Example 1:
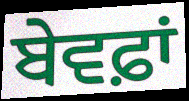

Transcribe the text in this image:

ਬੇਵਫ਼ਾਂ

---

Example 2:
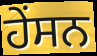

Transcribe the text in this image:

ਹੇਂਸਨ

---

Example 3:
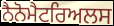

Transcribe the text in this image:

ਨੈਨੋਮੈਟਰਿਅਲਸ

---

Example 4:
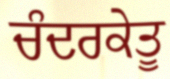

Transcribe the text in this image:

ਚੰਦਰਕੇਤੂ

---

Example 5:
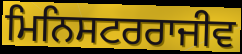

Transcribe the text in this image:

ਮਿਨਿਸਟਰਰਾਜੀਵ